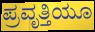
ಪ್ರವೃತ್ತಿಯೂ